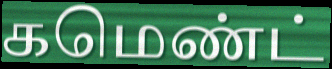
கமெண்ட்